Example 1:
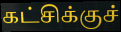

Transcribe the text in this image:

கட்சிக்குச்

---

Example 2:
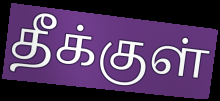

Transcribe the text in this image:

தீக்குள்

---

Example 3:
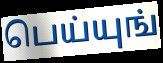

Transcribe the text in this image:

பெய்யுங்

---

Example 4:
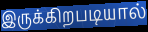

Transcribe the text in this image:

இருக்கிறபடியால்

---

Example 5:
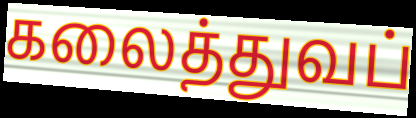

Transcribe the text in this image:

கலைத்துவப்